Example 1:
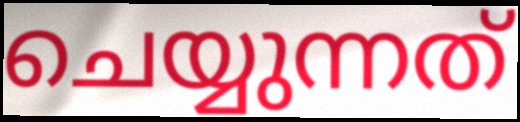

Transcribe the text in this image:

ചെയ്യുന്നത്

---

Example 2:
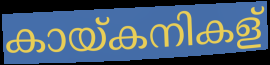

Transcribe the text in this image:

കായ്കനികള്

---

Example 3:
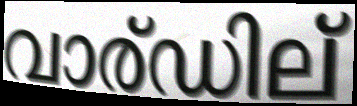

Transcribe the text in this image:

വാര്ഡില്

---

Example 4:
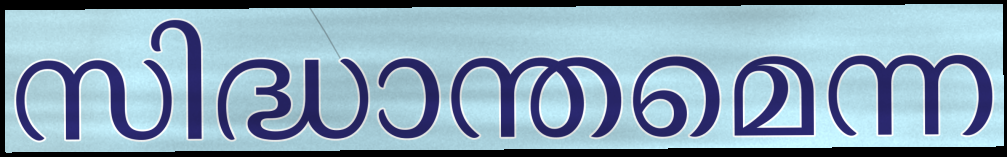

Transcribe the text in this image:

സിദ്ധാന്തമെന്ന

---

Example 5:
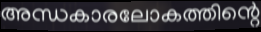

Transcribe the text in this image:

അന്ധകാരലോകത്തിന്റെ